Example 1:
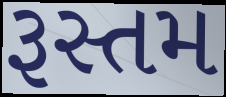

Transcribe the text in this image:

રૂસ્તમ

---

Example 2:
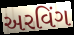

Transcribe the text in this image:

અરવિંગ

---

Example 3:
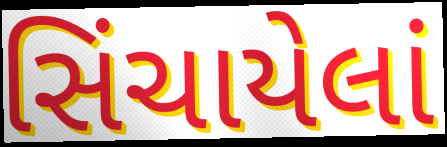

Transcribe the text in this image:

સિંચાયેલાં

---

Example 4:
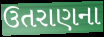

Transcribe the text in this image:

ઉતરાણના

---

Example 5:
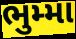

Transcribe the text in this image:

ભુમ્મા